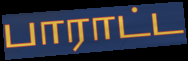
பாராட்ட